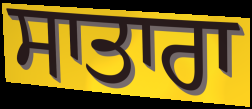
ਸਾਤਾਰਾ